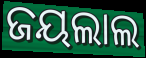
ଜୟଲାଲ